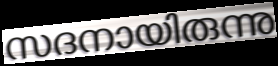
സദനായിരുന്നു